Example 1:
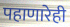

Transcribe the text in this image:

पहाणारेही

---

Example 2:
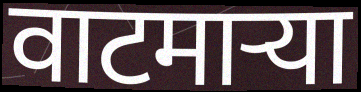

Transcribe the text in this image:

वाटमाऱ्या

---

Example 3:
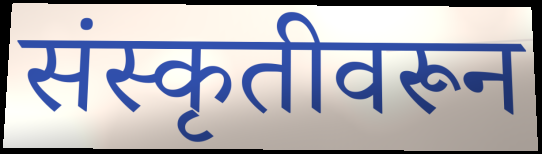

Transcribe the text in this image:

संस्कृतीवरून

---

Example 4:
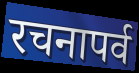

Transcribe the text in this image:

रचनापर्व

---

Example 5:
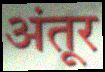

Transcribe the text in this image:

अंतूर